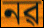
নৱ